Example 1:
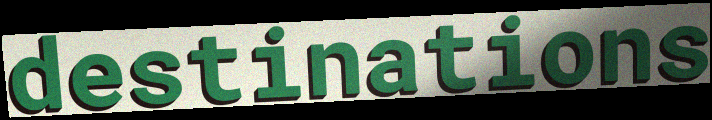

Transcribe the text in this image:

destinations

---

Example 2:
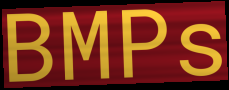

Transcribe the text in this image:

BMPs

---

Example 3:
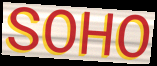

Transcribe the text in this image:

SOHO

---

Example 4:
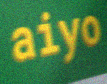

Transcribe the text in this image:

aiyo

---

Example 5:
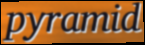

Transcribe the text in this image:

pyramid